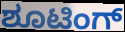
ಶೂಟಿಂಗ್